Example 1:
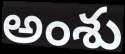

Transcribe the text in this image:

అంశు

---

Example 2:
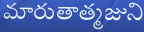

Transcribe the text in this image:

మారుతాత్మజుని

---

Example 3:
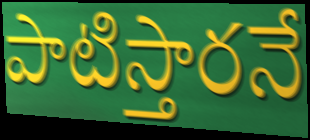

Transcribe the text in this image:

పాటిస్తారనే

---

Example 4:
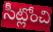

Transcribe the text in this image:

సీట్లోంచి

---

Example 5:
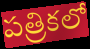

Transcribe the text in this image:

పత్రికలో